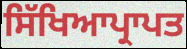
ਸਿੱਖਿਆਪ੍ਰਾਪਤ